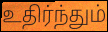
உதிர்ந்தும்